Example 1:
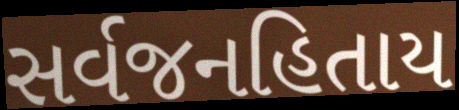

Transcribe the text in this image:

સર્વજનહિતાય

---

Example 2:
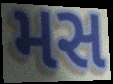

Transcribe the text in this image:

મસ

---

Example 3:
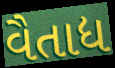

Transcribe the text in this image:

વૈતાદ્ય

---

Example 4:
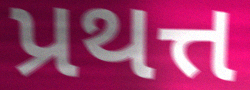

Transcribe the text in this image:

પ્રથત્ત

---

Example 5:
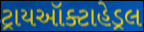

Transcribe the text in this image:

ટ્રાયઑક્ટાહેડ્રલ